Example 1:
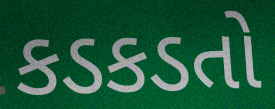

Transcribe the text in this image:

કડકડતો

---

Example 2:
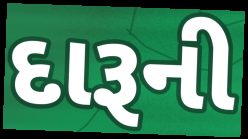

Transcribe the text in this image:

દારૂની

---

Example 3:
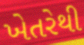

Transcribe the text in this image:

ખેતરેથી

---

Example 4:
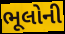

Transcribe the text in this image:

ભૂલોની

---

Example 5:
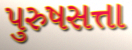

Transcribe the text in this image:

પુરુષસત્તા